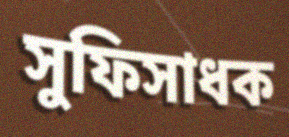
সুফিসাধক